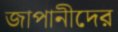
জাপানীদের